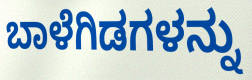
ಬಾಳೆಗಿಡಗಳನ್ನು